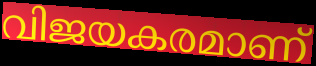
വിജയകരമാണ്